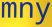
mny